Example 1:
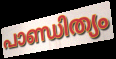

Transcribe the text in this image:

പാണ്ഡിത്യം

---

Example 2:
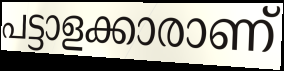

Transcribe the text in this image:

പട്ടാളക്കാരാണ്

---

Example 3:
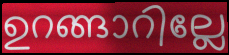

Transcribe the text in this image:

ഉറങ്ങാറില്ലേ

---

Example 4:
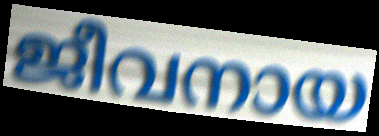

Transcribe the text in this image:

ജീവനായ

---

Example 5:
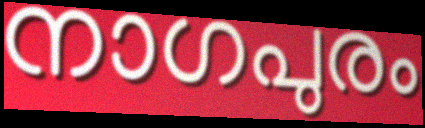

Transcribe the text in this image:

നാഗപുരം